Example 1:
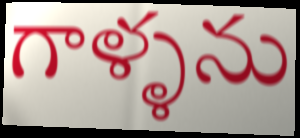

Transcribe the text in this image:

గాళ్ళను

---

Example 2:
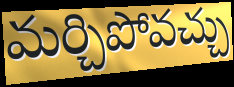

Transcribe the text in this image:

మర్చిపోవచ్చు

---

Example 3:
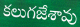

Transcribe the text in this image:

కలుగజేశావు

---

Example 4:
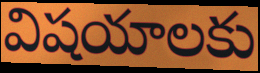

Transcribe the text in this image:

విషయాలకు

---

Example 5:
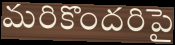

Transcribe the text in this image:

మరికొందరిపై